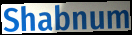
Shabnum